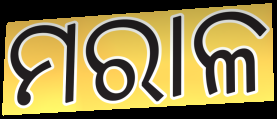
ମରାଳ